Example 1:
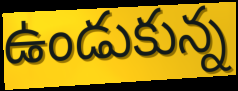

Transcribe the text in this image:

ఉండుకున్న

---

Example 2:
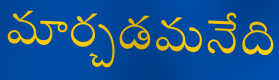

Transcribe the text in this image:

మార్చడమనేది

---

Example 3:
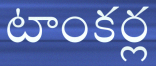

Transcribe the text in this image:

టాంకర్ల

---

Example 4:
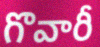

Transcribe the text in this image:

గొవారీ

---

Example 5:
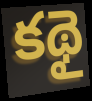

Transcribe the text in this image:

కథై